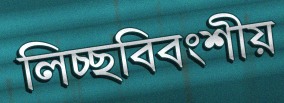
লিচ্ছবিবংশীয়